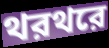
থরথরে